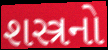
શસ્ત્રનો